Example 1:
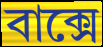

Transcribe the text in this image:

বাক্সে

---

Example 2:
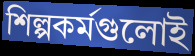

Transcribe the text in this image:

শিল্পকর্মগুলোই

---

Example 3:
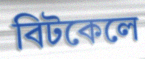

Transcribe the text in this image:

বিটকেলে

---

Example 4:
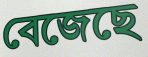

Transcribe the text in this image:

বেজেছে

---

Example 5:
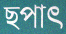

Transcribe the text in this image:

ছপাৎ